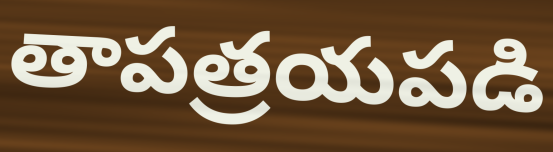
తాపత్రయపడి